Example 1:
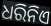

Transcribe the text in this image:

ଧରିନିଏ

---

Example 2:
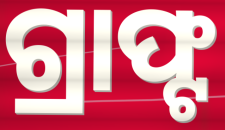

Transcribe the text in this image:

ଗ୍ରାଫ୍ଟ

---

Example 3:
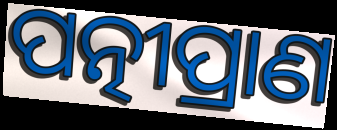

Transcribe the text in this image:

ପତ୍ନୀପ୍ରାଣ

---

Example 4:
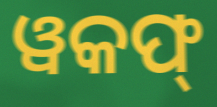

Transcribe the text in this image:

ୱକଫ୍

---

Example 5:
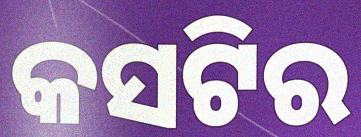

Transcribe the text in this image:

କସଟିର